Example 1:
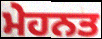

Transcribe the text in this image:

ਮੇਹਨਤ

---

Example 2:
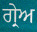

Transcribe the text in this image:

ਗ੍ਰੇਅ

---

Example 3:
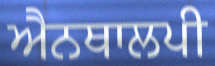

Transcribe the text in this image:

ਐਨਥਾਲਪੀ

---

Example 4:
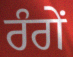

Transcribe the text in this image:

ਰੰਗੇਂ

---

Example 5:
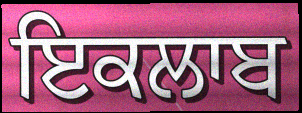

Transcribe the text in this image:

ਇਕਲਾਬ